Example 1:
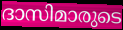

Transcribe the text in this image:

ദാസിമാരുടെ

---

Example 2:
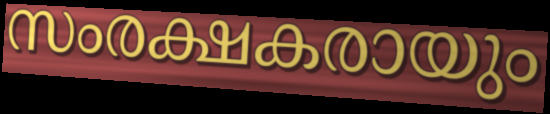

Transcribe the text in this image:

സംരക്ഷകരായും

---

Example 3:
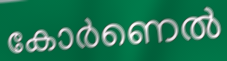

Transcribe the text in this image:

കോർണെൽ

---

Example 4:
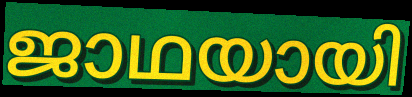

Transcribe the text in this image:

ജാഥയായി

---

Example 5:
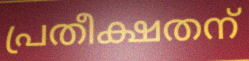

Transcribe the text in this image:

പ്രതീക്ഷതന്